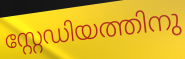
സ്റ്റേഡിയത്തിനു